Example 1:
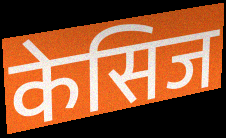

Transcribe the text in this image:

केसिज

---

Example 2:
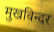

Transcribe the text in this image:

मुखविन्दर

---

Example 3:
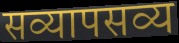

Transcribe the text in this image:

सव्यापसव्य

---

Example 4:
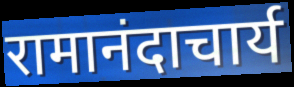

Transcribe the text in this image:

रामानंदाचार्य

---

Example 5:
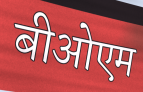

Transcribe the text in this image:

बीओएम